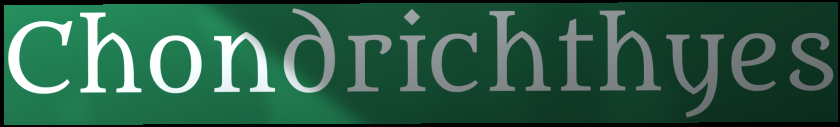
Chondrichthyes